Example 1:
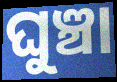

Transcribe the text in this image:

ଘୁଞ୍ଚା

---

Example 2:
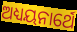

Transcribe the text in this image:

ଅଧ୍ୟୟନାର୍ଥେ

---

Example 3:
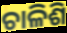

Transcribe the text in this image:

ଚାଳିଶି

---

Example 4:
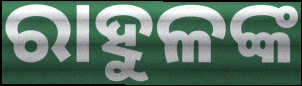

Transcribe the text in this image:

ରାହୁଳଙ୍କ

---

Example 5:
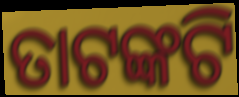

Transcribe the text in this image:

ତାଟଙ୍କଟି